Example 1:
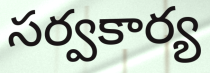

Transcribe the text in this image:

సర్వకార్య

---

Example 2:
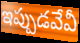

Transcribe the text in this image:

ఇప్పుడవేవీ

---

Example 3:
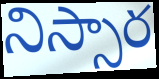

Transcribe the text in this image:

నిస్సార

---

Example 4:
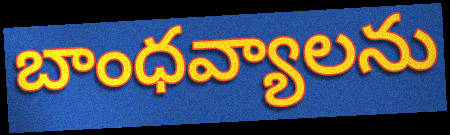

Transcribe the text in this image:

బాంధవ్యాలను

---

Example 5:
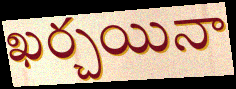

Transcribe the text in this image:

ఖర్చయినా